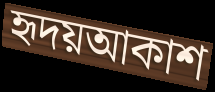
হৃদয়আকাশ